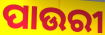
ପାଉରୀ